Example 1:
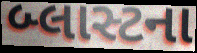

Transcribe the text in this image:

બ્લાસ્ટના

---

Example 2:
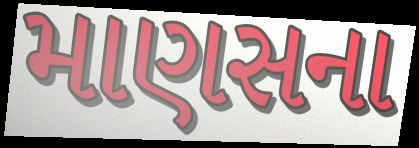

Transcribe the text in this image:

માણસના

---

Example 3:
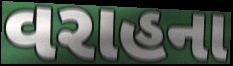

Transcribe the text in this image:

વરાહના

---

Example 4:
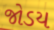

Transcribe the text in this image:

જોડય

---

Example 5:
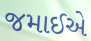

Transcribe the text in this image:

જમાઈએ